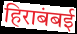
हिराबंबई